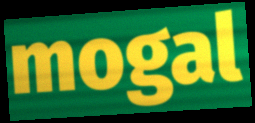
mogal